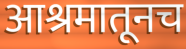
आश्रमातूनच